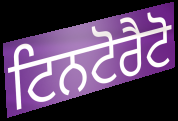
ਟਿਨਟੋਰੈਟੋ